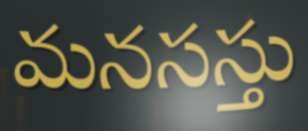
మనసస్తు